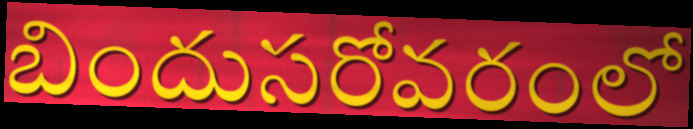
బిందుసరోవరంలో